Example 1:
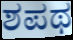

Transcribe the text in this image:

ಶಪಥ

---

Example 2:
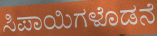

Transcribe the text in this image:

ಸಿಪಾಯಿಗಳೊಡನೆ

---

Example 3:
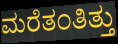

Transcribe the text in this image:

ಮರೆತಂತಿತ್ತು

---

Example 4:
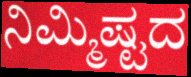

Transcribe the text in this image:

ನಿಮ್ಮಿಷ್ಟದ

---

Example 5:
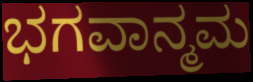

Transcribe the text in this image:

ಭಗವಾನ್ಮಮ